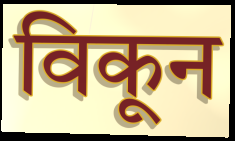
विकून